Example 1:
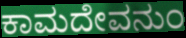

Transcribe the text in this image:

ಕಾಮದೇವನುಂ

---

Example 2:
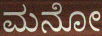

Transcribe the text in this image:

ಮನೋ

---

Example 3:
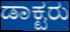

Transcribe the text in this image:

ಡಾಕ್ಟರು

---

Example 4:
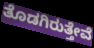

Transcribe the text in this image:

ತೊಡಗಿರುತ್ತೇವೆ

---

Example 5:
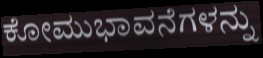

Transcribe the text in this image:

ಕೋಮುಭಾವನೆಗಳನ್ನು